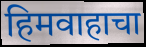
हिमवाहाचा